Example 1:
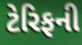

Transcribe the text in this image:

ટેરિફની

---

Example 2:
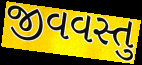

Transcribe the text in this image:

જીવવસ્તુ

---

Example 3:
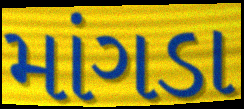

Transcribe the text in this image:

માંગડા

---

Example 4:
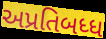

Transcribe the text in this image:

અપ્રતિબધ્ધ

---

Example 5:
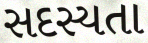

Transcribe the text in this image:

સદસ્યતા